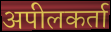
अपीलकर्ता